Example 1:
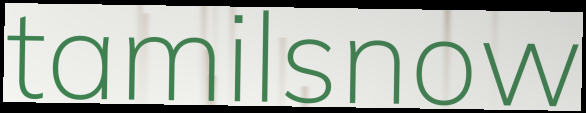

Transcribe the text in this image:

tamilsnow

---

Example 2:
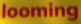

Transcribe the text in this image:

looming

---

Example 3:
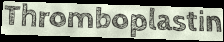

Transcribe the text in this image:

Thromboplastin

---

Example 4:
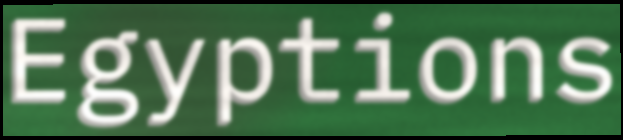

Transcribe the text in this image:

Egyptions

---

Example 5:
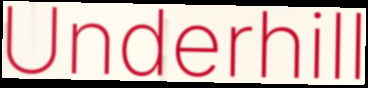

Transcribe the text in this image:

Underhill